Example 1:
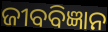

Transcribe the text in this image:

ଜୀବବିଜ୍ଞାନ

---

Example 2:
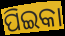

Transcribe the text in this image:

ପିଇକା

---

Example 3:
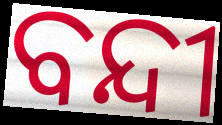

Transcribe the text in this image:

ବନ୍ଦୀ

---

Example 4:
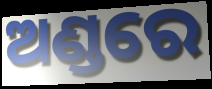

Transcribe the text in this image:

ଅଣ୍ଡରେ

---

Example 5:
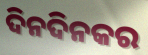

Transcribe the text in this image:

ଦିନଦିନକର